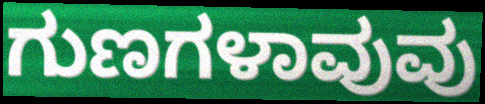
ಗುಣಗಳಾವುವು